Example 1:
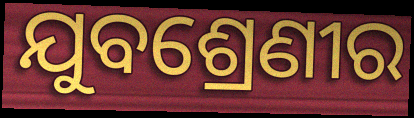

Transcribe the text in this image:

ଯୁବଶ୍ରେଣୀର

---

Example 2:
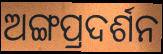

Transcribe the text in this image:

ଅଙ୍ଗପ୍ରଦର୍ଶନ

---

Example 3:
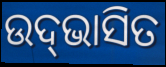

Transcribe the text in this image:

ଉଦ୍‌ଭାସିତ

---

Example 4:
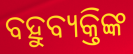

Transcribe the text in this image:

ବହୁବ୍ୟକ୍ତିଙ୍କ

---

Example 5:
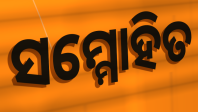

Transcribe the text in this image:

ସମ୍ମୋହିତ